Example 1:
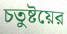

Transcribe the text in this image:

চতুষ্টয়ের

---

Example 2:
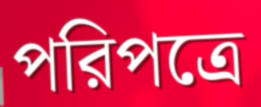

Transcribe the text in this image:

পরিপত্রে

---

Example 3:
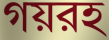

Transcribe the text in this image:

গয়রহ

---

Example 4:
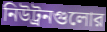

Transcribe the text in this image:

নিউট্রনগুলোর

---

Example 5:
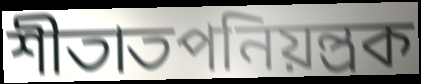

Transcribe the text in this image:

শীতাতপনিয়ন্ত্রক